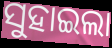
ସୁହାଇଲା